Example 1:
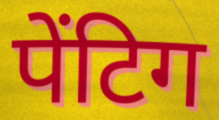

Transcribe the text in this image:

पेंटिग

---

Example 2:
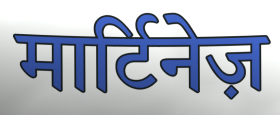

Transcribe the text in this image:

मार्टिनेज़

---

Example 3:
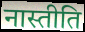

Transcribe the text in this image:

नास्तीति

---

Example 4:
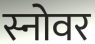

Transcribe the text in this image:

स्नोवर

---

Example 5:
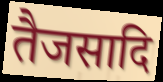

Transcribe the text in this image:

तैजसादि